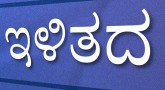
ಇಳಿತದ